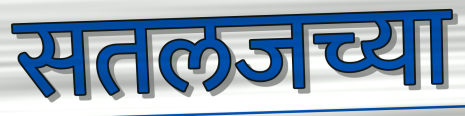
सतलजच्या